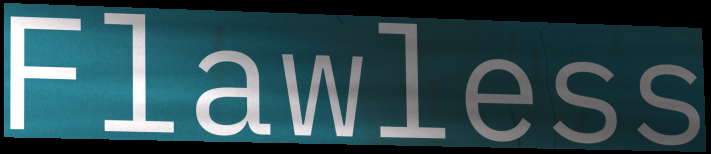
Flawless